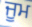
ਜੂਮ